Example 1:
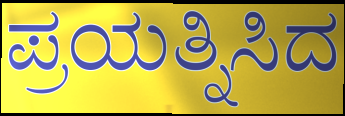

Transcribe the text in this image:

ಪ್ರಯತ್ನಿಸಿದ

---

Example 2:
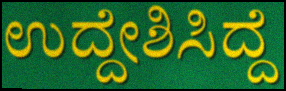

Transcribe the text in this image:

ಉದ್ದೇಶಿಸಿದ್ದೆ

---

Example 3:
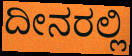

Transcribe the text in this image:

ದೀನರಲ್ಲಿ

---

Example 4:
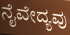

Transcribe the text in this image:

ನೈವೇದ್ಯವು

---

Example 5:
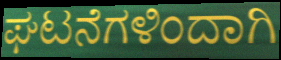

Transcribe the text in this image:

ಘಟನೆಗಳಿಂದಾಗಿ